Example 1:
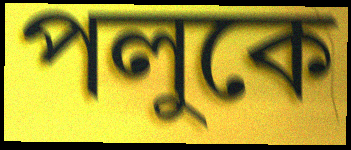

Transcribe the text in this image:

পলুকে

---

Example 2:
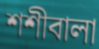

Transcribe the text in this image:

শশীবালা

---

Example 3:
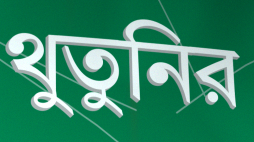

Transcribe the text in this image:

থুতুনির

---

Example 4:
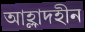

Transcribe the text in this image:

আহ্লাদহীন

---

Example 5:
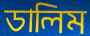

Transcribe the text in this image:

ডালিম